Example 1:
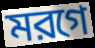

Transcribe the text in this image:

মরগে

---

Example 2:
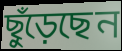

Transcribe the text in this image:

ছুঁড়েছেন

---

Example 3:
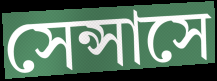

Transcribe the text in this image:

সেন্সাসে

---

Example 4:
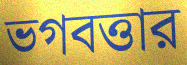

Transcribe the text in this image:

ভগবত্তার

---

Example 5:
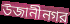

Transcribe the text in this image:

উজানীনগর